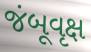
જંબૂવૃક્ષ